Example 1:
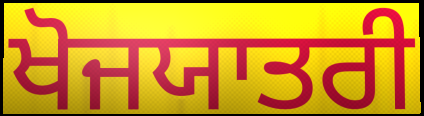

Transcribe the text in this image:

ਖੋਜਯਾਤਰੀ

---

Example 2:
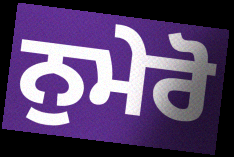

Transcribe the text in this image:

ਨੁਮੇਰੋ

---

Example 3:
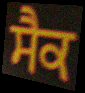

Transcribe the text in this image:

ਸੈਕ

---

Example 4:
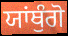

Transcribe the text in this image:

ਯਾਂਥੁੰਗੋ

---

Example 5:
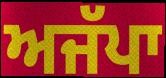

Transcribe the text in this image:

ਅਜੱਪਾ